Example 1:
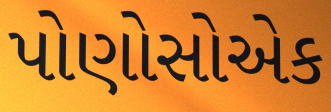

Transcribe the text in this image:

પોણોસોએક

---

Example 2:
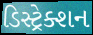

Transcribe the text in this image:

ડિસ્ટ્રેક્શન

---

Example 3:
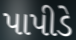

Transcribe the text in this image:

પાપીડે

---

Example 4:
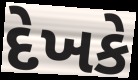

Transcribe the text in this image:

દેખકે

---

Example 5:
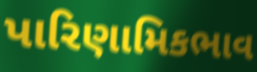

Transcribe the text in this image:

પારિણામિકભાવ